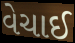
વેચાઈ